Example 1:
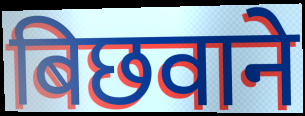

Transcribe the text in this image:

बिछवाने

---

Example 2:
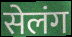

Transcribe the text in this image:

सेलंग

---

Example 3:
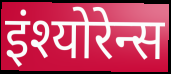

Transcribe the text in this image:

इंश्योरेन्स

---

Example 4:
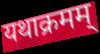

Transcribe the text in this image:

यथाक्रमम्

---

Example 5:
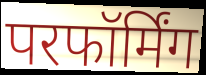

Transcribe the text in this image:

परफॉर्मिंग